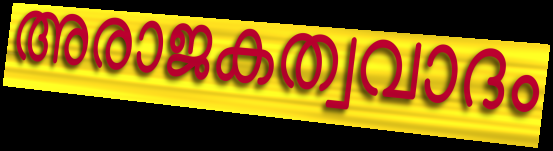
അരാജകത്വവാദം